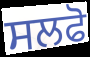
ਸਲਫੋ